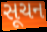
સૂચન